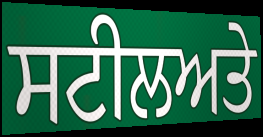
ਸਟੀਲਅਤੇ